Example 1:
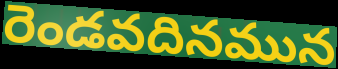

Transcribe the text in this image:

రెండవదినమున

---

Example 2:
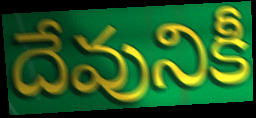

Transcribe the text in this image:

దేవునికీ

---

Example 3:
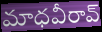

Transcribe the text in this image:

మాధవీరావ్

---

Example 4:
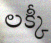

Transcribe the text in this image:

లక్కీ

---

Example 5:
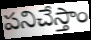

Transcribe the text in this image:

పనిచేస్తాం